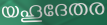
യഹൂദേതര